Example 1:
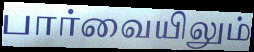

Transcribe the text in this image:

பார்வையிலும்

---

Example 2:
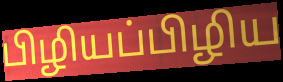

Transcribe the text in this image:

பிழியப்பிழிய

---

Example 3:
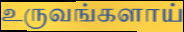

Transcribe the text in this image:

உருவங்களாய்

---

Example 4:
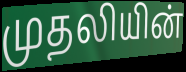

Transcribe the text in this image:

முதலியின்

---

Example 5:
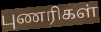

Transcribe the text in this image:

புணரிகள்